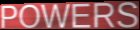
POWERS